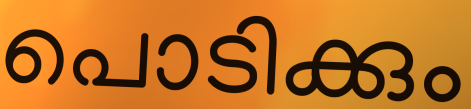
പൊടിക്കും